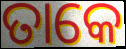
ତାକେ